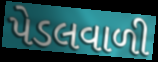
પેડલવાળી